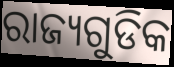
ରାଜ୍ୟଗୁଡିକ